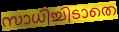
സാധിച്ചിടാതെ